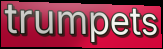
trumpets